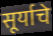
सूर्याचे